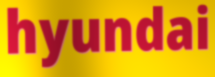
hyundai